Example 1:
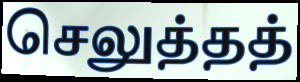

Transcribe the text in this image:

செலுத்தத்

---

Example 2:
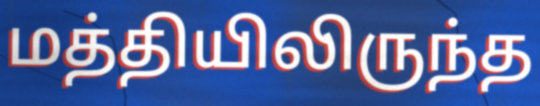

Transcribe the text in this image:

மத்தியிலிருந்த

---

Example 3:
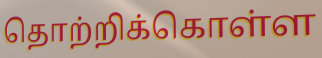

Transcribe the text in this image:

தொற்றிக்கொள்ள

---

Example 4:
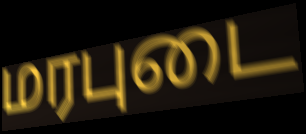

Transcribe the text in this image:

மரபுடை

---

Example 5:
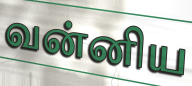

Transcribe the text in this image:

வன்னிய